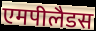
एमपीलैडस